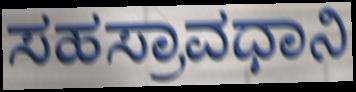
ಸಹಸ್ರಾವಧಾನಿ